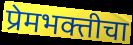
प्रेमभक्तीचा